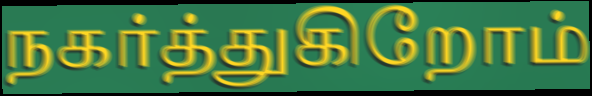
நகர்த்துகிறோம்